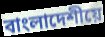
বাংলাদেশীয়ে